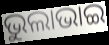
ଭୁଲାଭାଇ